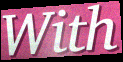
With